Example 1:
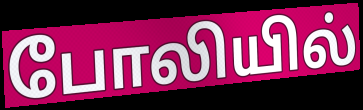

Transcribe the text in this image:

போலியில்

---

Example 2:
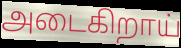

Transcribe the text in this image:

அடைகிறாய்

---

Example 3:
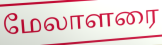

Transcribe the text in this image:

மேலாளரை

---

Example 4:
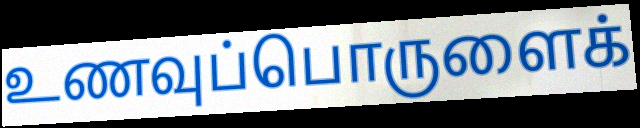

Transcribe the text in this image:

உணவுப்பொருளைக்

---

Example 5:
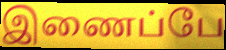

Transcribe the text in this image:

இணைப்பே